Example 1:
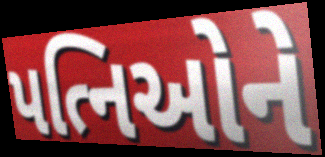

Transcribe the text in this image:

પત્નિઓને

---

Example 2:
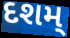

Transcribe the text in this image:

દશમ્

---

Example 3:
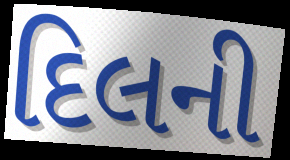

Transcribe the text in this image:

દિલની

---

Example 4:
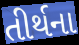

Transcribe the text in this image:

તીર્થના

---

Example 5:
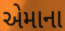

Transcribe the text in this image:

એમાના